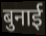
बुनाई